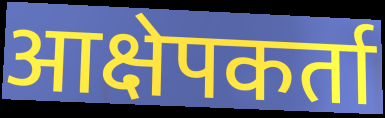
आक्षेपकर्ता